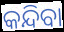
କନ୍ଦିବା